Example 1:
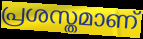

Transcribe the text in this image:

പ്രശസ്തമാണ്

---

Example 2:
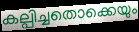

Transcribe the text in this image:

കല്പിച്ചതൊക്കെയും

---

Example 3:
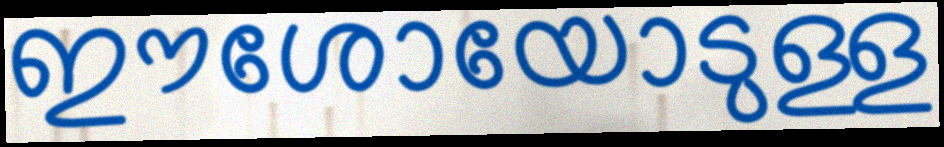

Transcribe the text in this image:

ഈശോയോടുള്ള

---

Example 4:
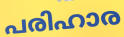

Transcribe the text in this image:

പരിഹാര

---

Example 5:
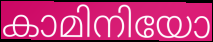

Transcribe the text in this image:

കാമിനിയോ